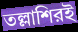
তল্লাশিরই